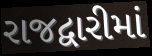
રાજદ્વારીમાં